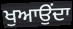
ਖੁਆਉਂਦਾ